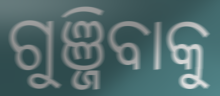
ଗୁଞ୍ଜିବାକୁ